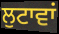
ਲੁਟਾਵਾਂ